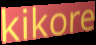
kikore